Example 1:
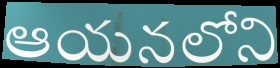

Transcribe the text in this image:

ఆయనలోని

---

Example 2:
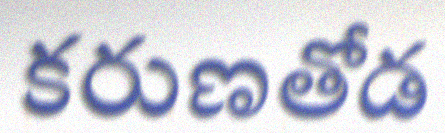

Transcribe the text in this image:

కరుణతోడ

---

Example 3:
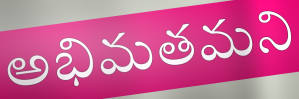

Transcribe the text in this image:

అభిమతమని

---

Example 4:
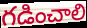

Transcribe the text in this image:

గడించాలి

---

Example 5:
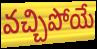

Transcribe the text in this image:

వచ్చిపోయే